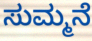
ಸುಮ್ಮನೆ